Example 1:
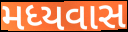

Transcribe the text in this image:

મધ્યવાસ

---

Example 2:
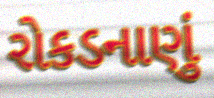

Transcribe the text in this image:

રોકડનાણું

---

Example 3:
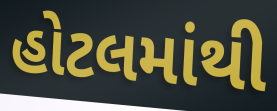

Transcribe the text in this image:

હોટલમાંથી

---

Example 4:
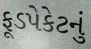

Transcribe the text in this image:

ફૂડપેકેટનું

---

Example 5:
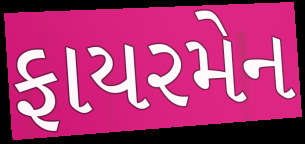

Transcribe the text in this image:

ફાયરમેન